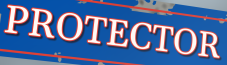
PROTECTOR